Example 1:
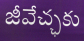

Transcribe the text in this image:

జీవేచ్ఛకు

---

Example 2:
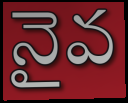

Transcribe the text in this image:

నైవ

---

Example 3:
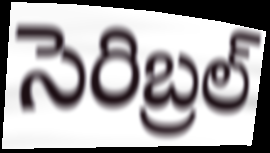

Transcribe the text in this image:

సెరిబ్రల్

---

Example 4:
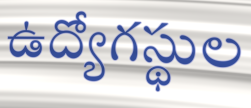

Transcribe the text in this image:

ఉద్యోగస్థుల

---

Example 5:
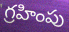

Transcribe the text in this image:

గ్రహింపు